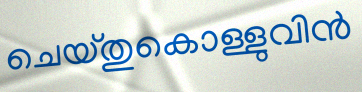
ചെയ്തുകൊള്ളുവിൻ